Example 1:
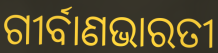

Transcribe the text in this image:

ଗୀର୍ବାଣଭାରତୀ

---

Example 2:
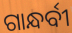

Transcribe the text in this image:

ଗାନ୍ଧର୍ବୀ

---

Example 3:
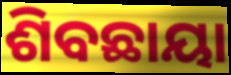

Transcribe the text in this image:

ଶିବଛାୟା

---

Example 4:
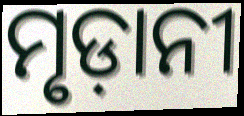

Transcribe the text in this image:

ମୃଡ଼ାନୀ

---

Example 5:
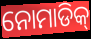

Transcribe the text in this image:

ନୋମାଡିକ୍